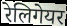
रेलिगेयर